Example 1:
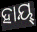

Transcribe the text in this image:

ହାୟ୍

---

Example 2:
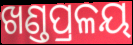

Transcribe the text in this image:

ଖଣ୍ଡପ୍ରଳୟ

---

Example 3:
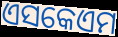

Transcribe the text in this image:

ଏସକେଏମ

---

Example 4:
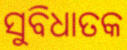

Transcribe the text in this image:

ସୁବିଧାତକ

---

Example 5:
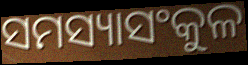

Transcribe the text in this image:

ସମସ୍ୟାସଂକୁଳ